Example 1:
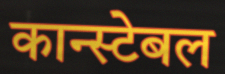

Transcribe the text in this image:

कान्स्टेबल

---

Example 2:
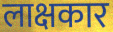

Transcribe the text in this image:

लाक्षकार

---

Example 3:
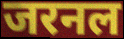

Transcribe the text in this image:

जरनल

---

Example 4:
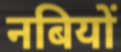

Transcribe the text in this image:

नबियों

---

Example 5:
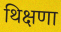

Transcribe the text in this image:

थिक्षणा